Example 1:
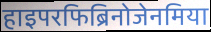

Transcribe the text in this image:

हाइपरफिब्रिनोजेनमिया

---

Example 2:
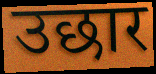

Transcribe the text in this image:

उछार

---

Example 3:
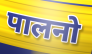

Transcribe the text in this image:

पालनो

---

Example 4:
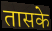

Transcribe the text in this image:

तासके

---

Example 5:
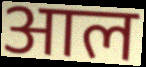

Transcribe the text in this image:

आल